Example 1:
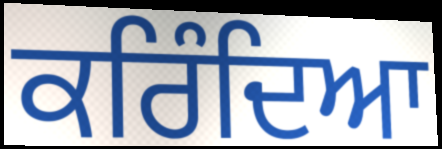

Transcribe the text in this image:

ਕਰਿੰਦਿਆ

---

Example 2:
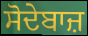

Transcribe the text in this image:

ਸੋਦੇਬਾਜ਼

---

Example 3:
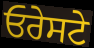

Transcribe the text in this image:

ਓਰੇਸਟੇ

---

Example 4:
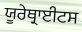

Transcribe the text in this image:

ਯੂਰੇਥ੍ਰਾਈਟਸ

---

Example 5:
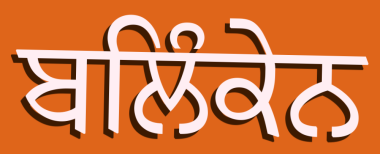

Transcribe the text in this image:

ਬਲਿੰਕੇਨ